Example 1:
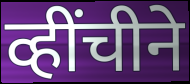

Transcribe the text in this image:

व्हींचीने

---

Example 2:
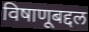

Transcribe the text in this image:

विषाणूबद्दल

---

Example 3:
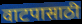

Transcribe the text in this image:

वाटपासाठी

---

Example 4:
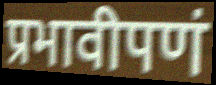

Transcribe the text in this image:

प्रभावीपणं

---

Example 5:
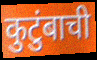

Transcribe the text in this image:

कुटुंबाची